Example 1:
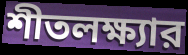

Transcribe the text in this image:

শীতলক্ষ্যার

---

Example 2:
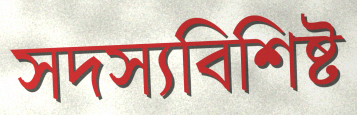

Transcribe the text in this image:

সদস্যবিশিষ্ট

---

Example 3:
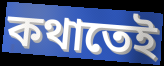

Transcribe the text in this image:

কথাতেই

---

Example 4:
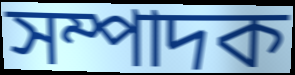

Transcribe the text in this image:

সম্পাদক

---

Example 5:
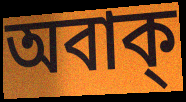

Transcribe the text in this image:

অবাক্